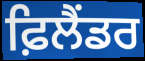
ਫ਼ਿਲੈਂਡਰ